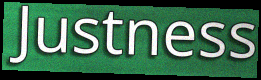
Justness